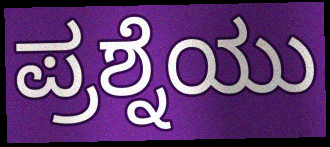
ಪ್ರಶ್ನೆಯು